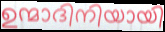
ഉന്മാദിനിയായി